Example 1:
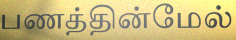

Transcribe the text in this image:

பணத்தின்மேல்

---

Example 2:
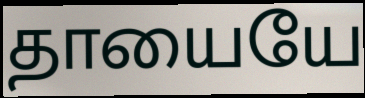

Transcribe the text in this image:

தாயையே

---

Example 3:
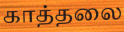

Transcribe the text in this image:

காத்தலை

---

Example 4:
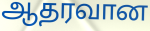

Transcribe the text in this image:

ஆதரவான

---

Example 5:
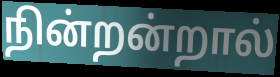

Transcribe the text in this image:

நின்றன்றால்